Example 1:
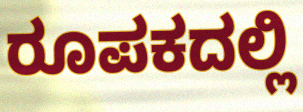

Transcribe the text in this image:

ರೂಪಕದಲ್ಲಿ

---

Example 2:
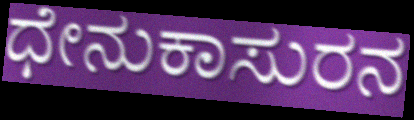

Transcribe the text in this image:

ಧೇನುಕಾಸುರನ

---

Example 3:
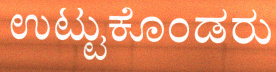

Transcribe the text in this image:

ಉಟ್ಟುಕೊಂಡರು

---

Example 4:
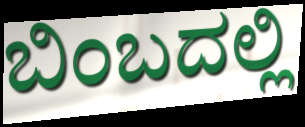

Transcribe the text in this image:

ಬಿಂಬದಲ್ಲಿ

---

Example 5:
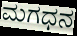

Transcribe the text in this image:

ಮಗಧನ